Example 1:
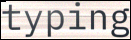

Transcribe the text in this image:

typing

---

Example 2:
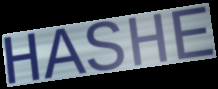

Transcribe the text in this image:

HASHE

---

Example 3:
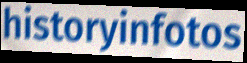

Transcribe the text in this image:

historyinfotos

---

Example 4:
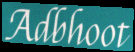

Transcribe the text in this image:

Adbhoot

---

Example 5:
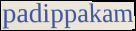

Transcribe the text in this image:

padippakam